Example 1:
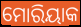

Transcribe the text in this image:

ମୋରିୟାକ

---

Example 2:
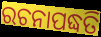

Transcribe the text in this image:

ରଚନାପଦ୍ଧତି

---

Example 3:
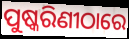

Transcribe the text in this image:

ପୁଷ୍କରିଣୀଠାରେ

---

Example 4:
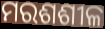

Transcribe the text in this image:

ମରଶଶୀଳ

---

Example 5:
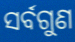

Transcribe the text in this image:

ସର୍ବଗୁଣ